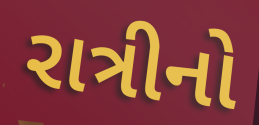
રાત્રીનો